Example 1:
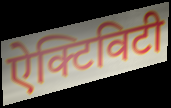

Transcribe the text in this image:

ऐक्टिविटी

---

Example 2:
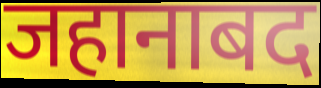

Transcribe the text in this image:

जहानाबद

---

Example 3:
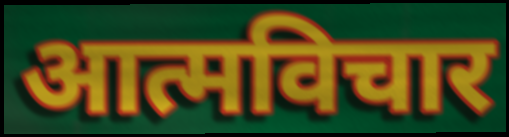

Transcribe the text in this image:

आत्मविचार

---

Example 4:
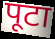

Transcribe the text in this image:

पूटा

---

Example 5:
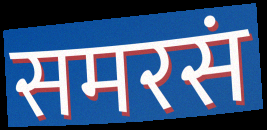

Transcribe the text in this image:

समरसं